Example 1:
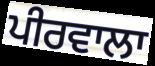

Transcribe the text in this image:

ਪੀਰਵਾਲਾ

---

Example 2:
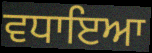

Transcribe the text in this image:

ਵਧਾਇਆ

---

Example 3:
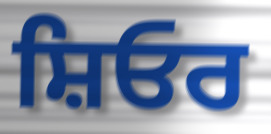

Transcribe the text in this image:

ਸ਼ਿਓਰ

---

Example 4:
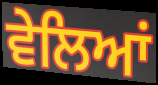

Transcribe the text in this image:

ਵੇਲਿਆਂ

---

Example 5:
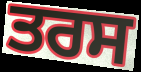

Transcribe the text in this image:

ਤਰਸ